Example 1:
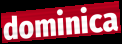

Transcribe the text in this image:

dominica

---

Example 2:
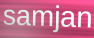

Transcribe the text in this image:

samjan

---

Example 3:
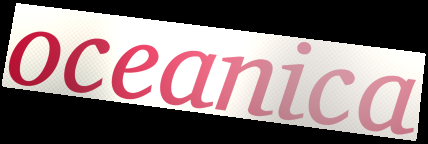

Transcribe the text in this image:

oceanica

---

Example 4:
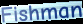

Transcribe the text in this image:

Fishman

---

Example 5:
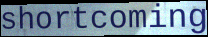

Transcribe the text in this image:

shortcoming